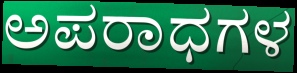
ಅಪರಾಧಗಳ